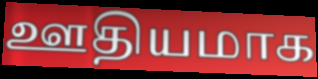
ஊதியமாக